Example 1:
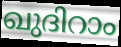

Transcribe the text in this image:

ഖുദിറാം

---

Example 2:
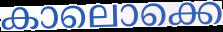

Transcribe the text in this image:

കാലൊക്കെ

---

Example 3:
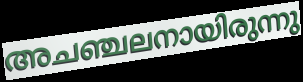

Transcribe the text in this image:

അചഞ്ചലനായിരുന്നു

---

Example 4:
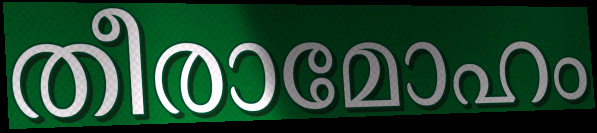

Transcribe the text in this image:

തീരാമോഹം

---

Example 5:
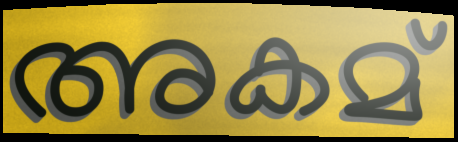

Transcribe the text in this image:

അകമ്